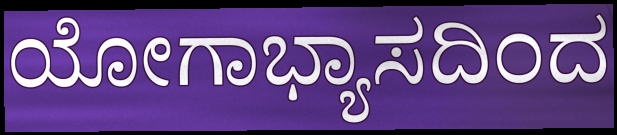
ಯೋಗಾಭ್ಯಾಸದಿಂದ